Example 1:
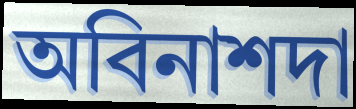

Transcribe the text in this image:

অবিনাশদা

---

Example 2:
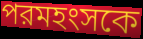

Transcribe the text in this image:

পরমহংসকে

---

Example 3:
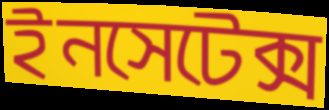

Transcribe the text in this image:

ইনসেটেক্স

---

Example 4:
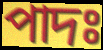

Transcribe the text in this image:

পাদঃ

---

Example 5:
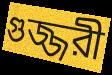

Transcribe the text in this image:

গুজ্জরী